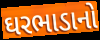
ઘરભાડાનો